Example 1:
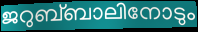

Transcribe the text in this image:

ജറുബ്‌ബാലിനോടും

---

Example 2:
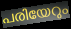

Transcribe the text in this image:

പരിയേറും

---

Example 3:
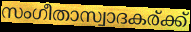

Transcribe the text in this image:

സംഗീതാസ്വാദകര്ക്ക്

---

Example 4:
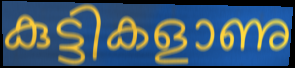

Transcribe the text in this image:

കുട്ടികളാണു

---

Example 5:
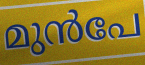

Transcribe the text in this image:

മുൻപേ